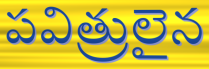
పవిత్రులైన